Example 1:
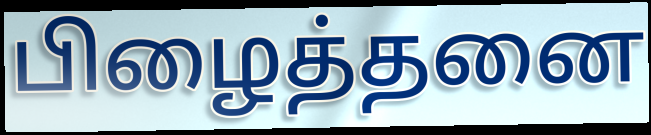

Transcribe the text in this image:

பிழைத்தனை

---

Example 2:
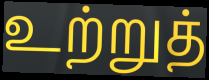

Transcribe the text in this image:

உற்றுத்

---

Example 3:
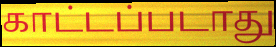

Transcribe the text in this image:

காட்டப்படாது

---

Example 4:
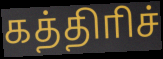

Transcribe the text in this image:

கத்திரிச்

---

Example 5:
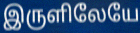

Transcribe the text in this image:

இருளிலேயே